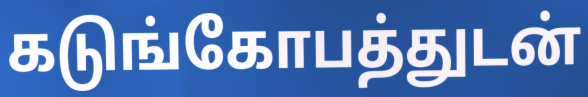
கடுங்கோபத்துடன்